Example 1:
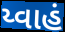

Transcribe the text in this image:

ય્વાહં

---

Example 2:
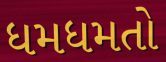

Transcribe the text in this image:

ધમધમતો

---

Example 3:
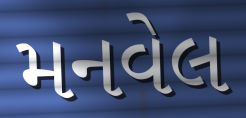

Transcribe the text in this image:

મનવેલ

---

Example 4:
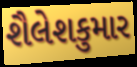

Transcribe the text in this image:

શૈલેશકુમાર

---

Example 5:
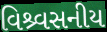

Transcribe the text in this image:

વિશ્ર્વસનીય